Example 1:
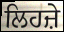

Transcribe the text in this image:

ਲਿਹਜ਼ੇ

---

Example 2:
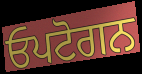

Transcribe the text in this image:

ਓਪਟੋਗਨ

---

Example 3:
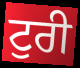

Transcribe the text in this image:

ਟੁਰੀ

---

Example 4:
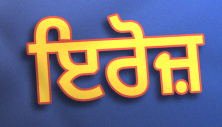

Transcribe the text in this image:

ਇਰੋਜ਼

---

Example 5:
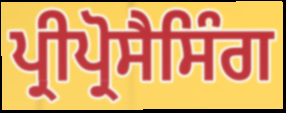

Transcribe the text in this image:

ਪ੍ਰੀਪ੍ਰੋਸੈਸਿੰਗ